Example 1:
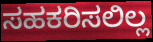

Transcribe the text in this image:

ಸಹಕರಿಸಲಿಲ್ಲ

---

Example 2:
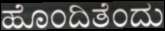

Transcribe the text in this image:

ಹೊಂದಿತೆಂದು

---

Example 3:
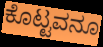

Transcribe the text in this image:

ಕೊಟ್ಟವನೂ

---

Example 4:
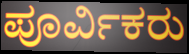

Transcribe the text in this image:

ಪೂರ್ವಿಕರು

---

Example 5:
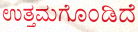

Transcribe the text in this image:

ಉತ್ತಮಗೊಂಡಿದೆ